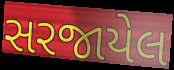
સરજાયેલ